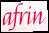
afrin